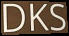
DKS